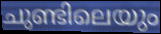
ചുണ്ടിലെയും